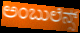
ಅಂಬುಲೆನ್ಸ್